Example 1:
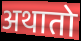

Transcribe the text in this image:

अथातो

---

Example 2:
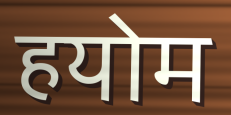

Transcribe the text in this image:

हयोम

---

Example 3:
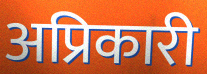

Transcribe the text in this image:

अप्रिकारी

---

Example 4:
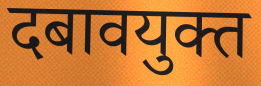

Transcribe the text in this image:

दबावयुक्त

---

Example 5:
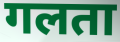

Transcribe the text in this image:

गलता